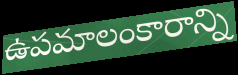
ఉపమాలంకారాన్ని